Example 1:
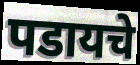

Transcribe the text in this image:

पडायचे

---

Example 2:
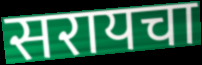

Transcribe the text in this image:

सरायचा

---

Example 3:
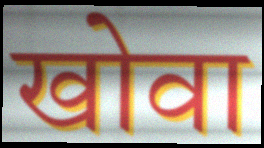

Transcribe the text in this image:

खोवा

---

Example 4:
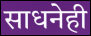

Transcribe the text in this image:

साधनेही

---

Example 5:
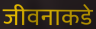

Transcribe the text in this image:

जीवनाकडे